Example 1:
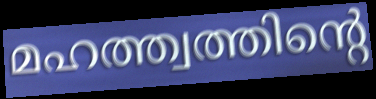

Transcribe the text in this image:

മഹത്ത്വത്തിന്റെ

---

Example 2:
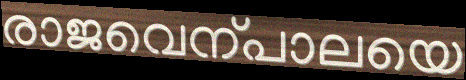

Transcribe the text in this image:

രാജവെന്പാലയെ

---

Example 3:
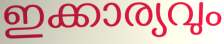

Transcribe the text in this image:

ഇക്കാര്യവും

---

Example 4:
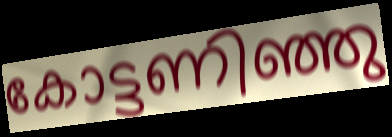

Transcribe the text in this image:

കോട്ടണിഞ്ഞു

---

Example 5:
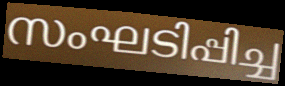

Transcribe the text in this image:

സംഘടിപ്പിച്ച